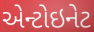
એન્ટોઇનેટ